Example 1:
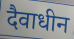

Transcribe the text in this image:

दैवाधीन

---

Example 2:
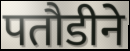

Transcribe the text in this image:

पतौडीने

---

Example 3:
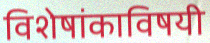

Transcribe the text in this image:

विशेषांकाविषयी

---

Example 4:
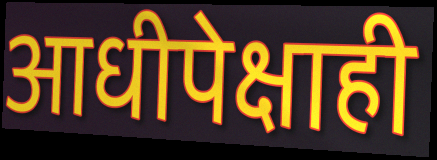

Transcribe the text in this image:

आधीपेक्षाही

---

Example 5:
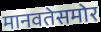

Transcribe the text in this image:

मानवतेसमोर